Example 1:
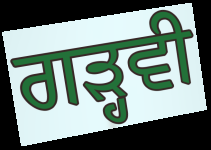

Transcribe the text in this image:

ਗੜ੍ਹਵੀ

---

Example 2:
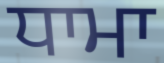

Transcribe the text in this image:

ਧਾਮਾ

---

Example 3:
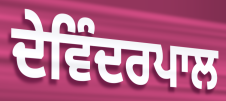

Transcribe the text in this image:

ਦੇਵਿੰਦਰਪਾਲ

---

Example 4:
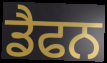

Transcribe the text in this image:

ਡੈਫਨ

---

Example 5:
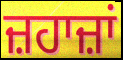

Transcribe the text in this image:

ਜ਼ਹਾਜ਼ਾਂ